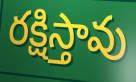
రక్షిస్తావు